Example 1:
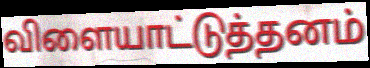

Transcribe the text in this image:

விளையாட்டுத்தனம்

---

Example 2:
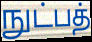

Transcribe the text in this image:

நுட்பத்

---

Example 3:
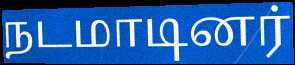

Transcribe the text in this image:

நடமாடினர்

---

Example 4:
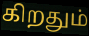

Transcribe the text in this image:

கிறதும்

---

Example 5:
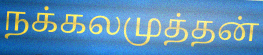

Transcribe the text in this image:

நக்கலமுத்தன்